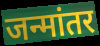
जन्मांतर